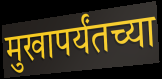
मुखापर्यंतच्या